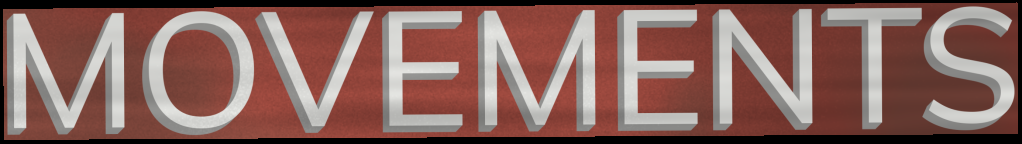
MOVEMENTS